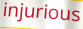
injurious